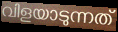
വിളയാടുന്നത്